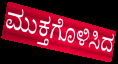
ಮುಕ್ತಗೊಳಿಸಿದ